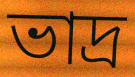
ভাদ্ৰ